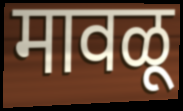
मावळू